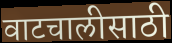
वाटचालीसाठी